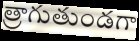
త్రాగుతుండగా